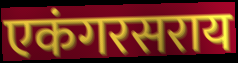
एकंगरसराय